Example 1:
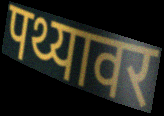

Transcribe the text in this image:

पथ्यावर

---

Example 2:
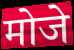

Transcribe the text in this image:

मोजे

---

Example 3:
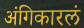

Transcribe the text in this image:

अंगिकारलं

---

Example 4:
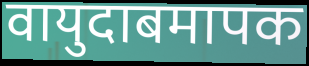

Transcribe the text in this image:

वायुदाबमापक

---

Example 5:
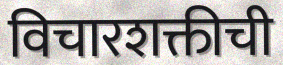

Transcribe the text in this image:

विचारशक्तीची